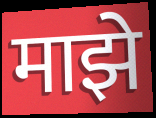
माझे